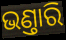
ଭଣ୍ତାରି